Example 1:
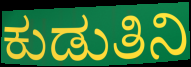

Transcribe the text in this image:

ಕುಡುತಿನಿ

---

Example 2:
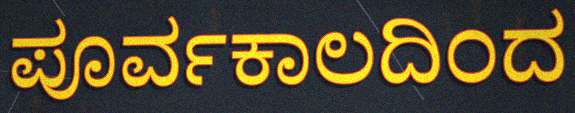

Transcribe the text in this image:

ಪೂರ್ವಕಾಲದಿಂದ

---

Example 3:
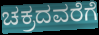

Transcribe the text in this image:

ಚಕ್ರದವರೆಗೆ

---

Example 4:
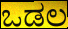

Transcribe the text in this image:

ಒಡಲ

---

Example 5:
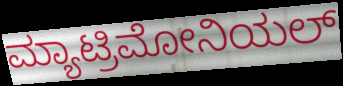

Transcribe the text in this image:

ಮ್ಯಾಟ್ರಿಮೋನಿಯಲ್